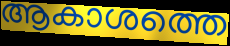
ആകാശത്തെ